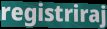
registriraj